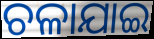
ଚଳାଯାଇ